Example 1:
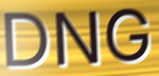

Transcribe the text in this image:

DNG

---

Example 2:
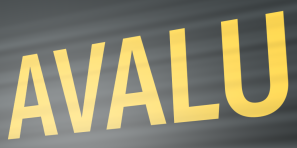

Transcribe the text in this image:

AVALU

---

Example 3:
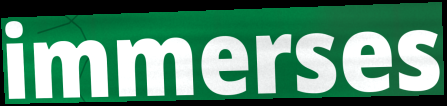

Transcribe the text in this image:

immerses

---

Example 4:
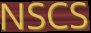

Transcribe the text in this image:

NSCS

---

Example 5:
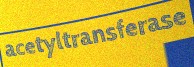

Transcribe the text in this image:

acetyltransferase